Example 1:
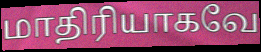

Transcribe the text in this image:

மாதிரியாகவே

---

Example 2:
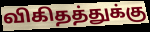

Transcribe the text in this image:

விகிதத்துக்கு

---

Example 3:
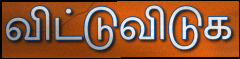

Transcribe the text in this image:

விட்டுவிடுக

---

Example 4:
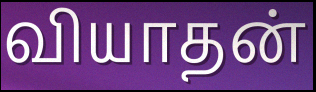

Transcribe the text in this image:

வியாதன்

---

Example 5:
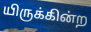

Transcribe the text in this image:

யிருக்கின்ற